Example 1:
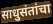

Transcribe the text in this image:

साधुसंतांचा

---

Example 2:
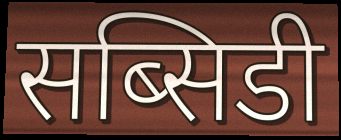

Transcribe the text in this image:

सब्सिडी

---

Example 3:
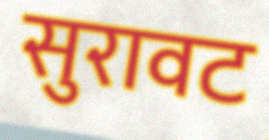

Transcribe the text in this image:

सुरावट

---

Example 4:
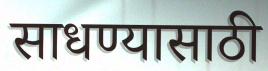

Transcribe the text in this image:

साधण्यासाठी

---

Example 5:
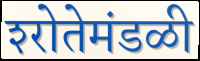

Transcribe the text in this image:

श्रोतेमंडळी